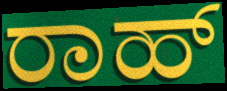
ರಾಹ್